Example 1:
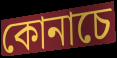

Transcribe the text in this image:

কোনাচে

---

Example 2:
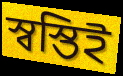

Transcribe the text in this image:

স্বস্তিই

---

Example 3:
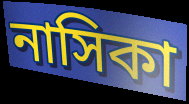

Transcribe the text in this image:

নাসিকা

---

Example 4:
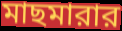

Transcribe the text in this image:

মাছমারার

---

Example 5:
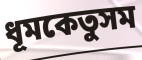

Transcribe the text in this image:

ধূমকেতুসম